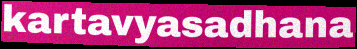
kartavyasadhana